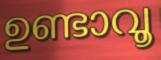
ഉണ്ടാവൂ